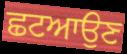
ਛਟਆਉਣ